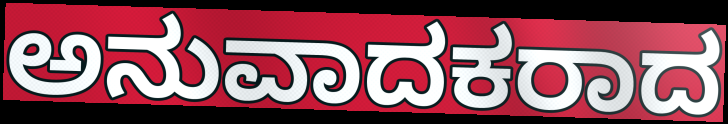
ಅನುವಾದಕರಾದ